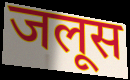
जलूस